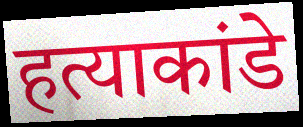
हत्याकांडे